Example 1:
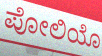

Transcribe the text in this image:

ಪೋಲಿಯೊ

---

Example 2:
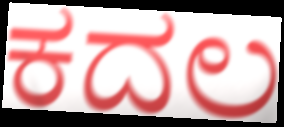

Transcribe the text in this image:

ಕದಲ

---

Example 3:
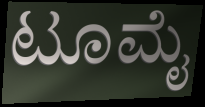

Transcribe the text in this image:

ಟೂಮೈ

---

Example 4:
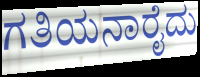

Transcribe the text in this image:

ಗತಿಯನಾರೈದು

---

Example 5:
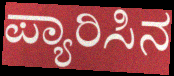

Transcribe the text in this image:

ಪ್ಯಾರಿಸಿನ